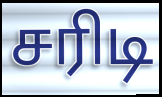
சரிடி